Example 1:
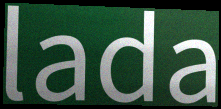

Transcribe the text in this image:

lada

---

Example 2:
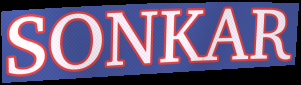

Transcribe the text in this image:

SONKAR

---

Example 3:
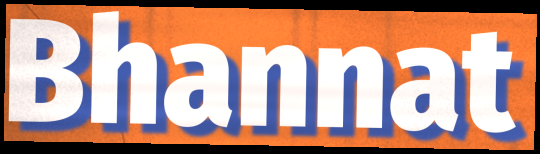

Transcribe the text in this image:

Bhannat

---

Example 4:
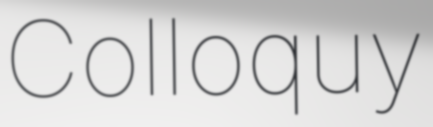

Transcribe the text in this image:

Colloquy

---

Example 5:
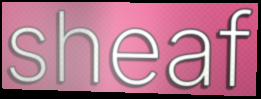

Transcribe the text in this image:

sheaf